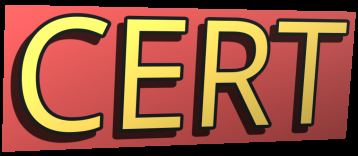
CERT